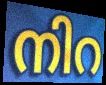
നിറ